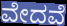
ವೇದವೆ